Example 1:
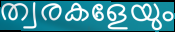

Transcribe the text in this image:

ത്വരകളേയും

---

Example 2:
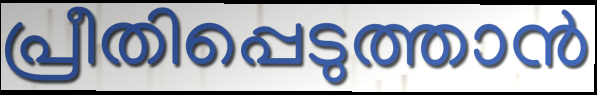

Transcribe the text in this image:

പ്രീതിപ്പെടുത്താൻ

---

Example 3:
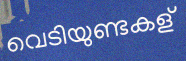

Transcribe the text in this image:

വെടിയുണ്ടകള്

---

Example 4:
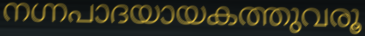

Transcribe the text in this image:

നഗ്നപാദയായകത്തുവരൂ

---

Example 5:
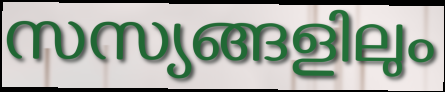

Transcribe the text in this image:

സസ്യങ്ങളിലും